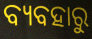
ବ୍ୟବହାରୁ